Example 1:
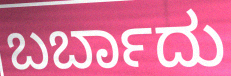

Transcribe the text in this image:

ಬರ್ಬಾದು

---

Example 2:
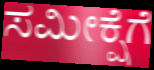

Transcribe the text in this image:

ಸಮೀಕ್ಷೆಗೆ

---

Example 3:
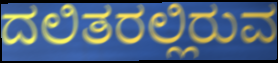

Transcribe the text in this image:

ದಲಿತರಲ್ಲಿರುವ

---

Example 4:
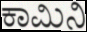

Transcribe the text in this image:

ಕಾಮಿನಿ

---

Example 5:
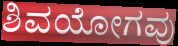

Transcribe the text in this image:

ಶಿವಯೋಗವು